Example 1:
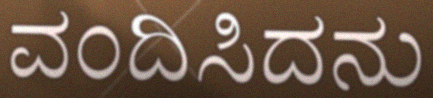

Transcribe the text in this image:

ವಂದಿಸಿದನು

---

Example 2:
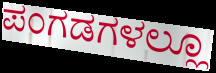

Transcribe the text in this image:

ಪಂಗಡಗಳಲ್ಲೂ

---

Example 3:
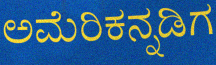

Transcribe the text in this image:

ಅಮೆರಿಕನ್ನಡಿಗ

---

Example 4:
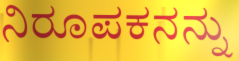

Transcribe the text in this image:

ನಿರೂಪಕನನ್ನು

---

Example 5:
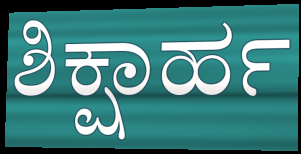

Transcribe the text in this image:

ಶಿಕ್ಷಾರ್ಹ